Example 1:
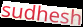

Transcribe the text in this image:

sudhesh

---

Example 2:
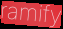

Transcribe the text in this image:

ramify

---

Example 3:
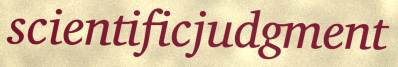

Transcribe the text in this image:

scientificjudgment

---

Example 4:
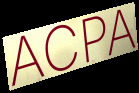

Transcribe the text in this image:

ACPA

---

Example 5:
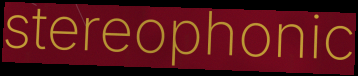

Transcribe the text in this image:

stereophonic